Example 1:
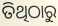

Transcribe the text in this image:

ତିଥିଠାରୁ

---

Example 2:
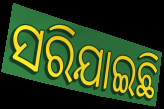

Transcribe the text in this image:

ସରିଯାଇଛି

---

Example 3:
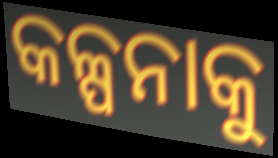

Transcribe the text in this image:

କଳ୍ପନାକୁ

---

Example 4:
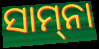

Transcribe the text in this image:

ସାମ୍‍ନା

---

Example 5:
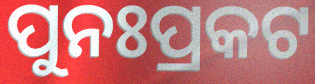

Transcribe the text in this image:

ପୁନଃପ୍ରକଟ